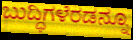
ಬುದ್ಧಿಗಳೆರಡನ್ನೂ